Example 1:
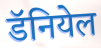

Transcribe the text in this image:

डॅनियेल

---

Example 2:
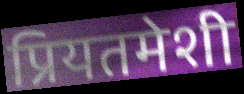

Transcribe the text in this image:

प्रियतमेशी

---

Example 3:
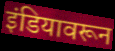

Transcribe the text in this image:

इंडियावरून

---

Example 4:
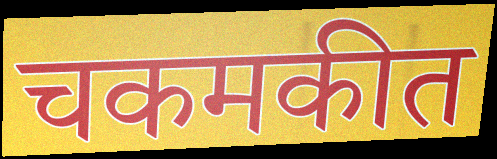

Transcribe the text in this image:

चकमकीत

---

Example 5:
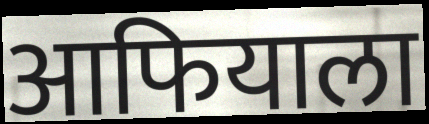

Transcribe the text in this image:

आफियाला